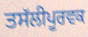
ਤਸੱਲੀਪੂਰਵਕ